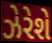
ઝેરેશે